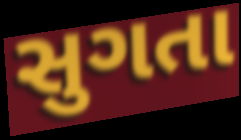
સુગતા